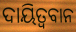
ଦାୟିତ୍ବବାନ